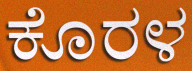
ಕೊರಳ